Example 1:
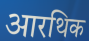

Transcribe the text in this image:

आरथिक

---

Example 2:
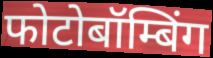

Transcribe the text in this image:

फोटोबॉम्बिंग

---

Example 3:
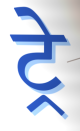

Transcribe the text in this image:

ट्रे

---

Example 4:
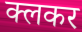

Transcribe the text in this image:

क्लकर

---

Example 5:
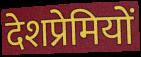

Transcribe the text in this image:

देशप्रेमियों